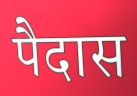
पैदास